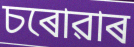
চৰোৱাৰ